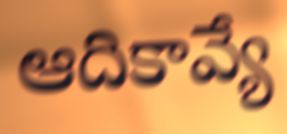
ఆదికావ్యే